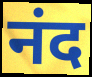
नंद